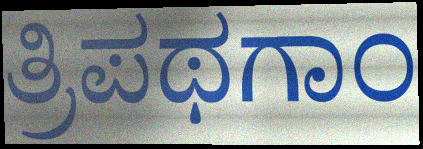
ತ್ರಿಪಥಗಾಂ